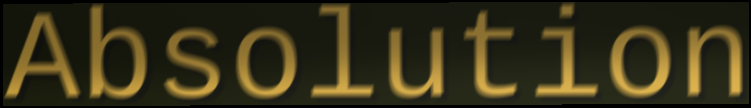
Absolution